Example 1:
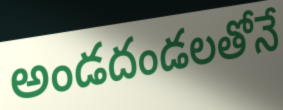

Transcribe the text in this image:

అండదండలతోనే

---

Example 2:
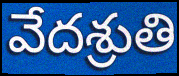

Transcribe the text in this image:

వేదశ్రుతి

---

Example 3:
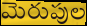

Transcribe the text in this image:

మెరుపుల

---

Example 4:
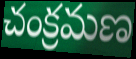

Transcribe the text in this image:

చంక్రమణ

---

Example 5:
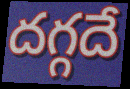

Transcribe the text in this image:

దగ్గదే